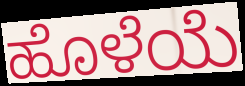
ಹೊಳೆಯೆ